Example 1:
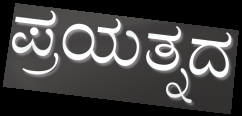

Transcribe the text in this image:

ಪ್ರಯತ್ನದ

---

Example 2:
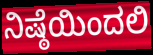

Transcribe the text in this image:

ನಿಷ್ಠೆಯಿಂದಲಿ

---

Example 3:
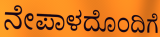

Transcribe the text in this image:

ನೇಪಾಳದೊಂದಿಗೆ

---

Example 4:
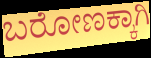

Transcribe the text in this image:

ಬರೋಣಕ್ಕಾಗಿ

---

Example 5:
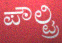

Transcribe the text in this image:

ಪೌಲ್ಟ್ರಿ